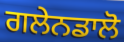
ਗਲੇਨਡਾਲੋ